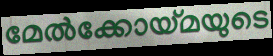
മേൽക്കോയ്മയുടെ